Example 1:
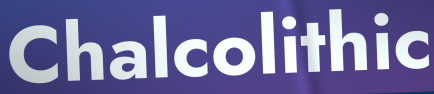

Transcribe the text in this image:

Chalcolithic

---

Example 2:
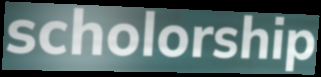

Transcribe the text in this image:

scholorship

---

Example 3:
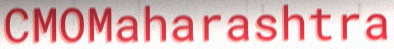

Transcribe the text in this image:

CMOMaharashtra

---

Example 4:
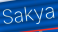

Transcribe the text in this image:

Sakya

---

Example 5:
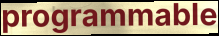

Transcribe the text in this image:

programmable